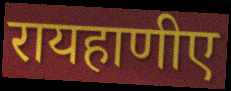
रायहाणीए